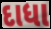
દાધા